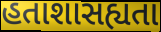
હતાશાસહ્યતા